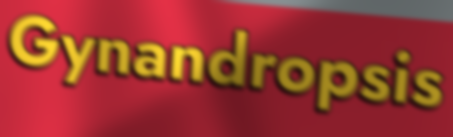
Gynandropsis